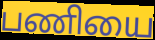
பணியை